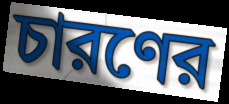
চারণের